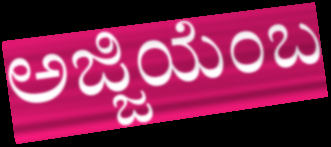
ಅಜ್ಜಿಯೆಂಬ